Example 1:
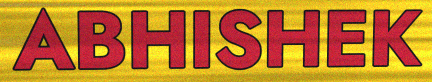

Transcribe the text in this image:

ABHISHEK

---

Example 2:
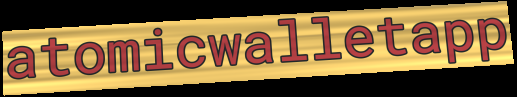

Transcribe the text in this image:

atomicwalletapp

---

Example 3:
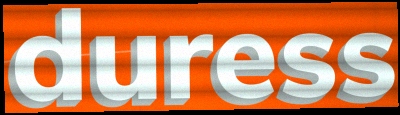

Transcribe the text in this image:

duress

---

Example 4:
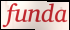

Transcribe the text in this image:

funda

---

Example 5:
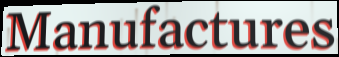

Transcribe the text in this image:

Manufactures